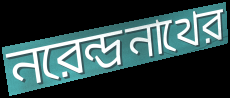
নরেন্দ্রনাথের